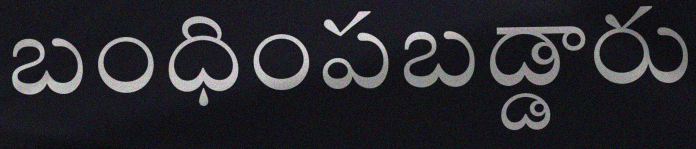
బంధింపబడ్డారు